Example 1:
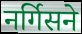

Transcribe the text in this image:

नर्गिसने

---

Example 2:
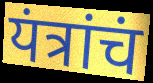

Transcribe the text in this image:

यंत्रांचं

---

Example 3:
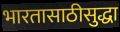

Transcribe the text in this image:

भारतासाठीसुद्धा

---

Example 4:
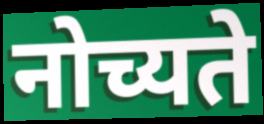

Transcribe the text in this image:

नोच्यते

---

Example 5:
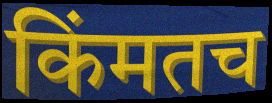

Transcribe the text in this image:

किंमतच